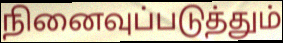
நினைவுப்படுத்தும்